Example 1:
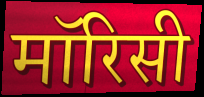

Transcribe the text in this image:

मॉरिसी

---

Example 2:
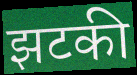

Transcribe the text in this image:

झटकी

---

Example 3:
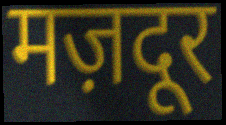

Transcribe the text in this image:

मज़दूर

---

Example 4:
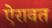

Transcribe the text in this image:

ऐरावत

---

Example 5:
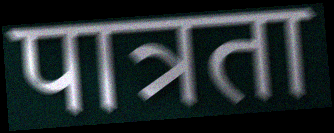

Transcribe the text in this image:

पात्रता